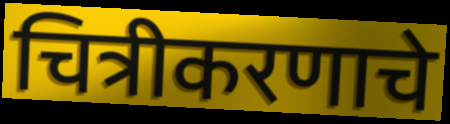
चित्रीकरणाचे